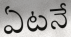
ఏటనే